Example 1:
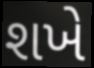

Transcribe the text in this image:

શખે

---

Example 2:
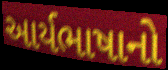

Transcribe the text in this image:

આર્યભાષાનો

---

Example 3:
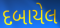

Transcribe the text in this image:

દબાયેલ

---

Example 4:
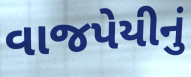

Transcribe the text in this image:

વાજપેયીનું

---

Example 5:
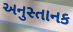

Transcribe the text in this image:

અનુસ્તાનક